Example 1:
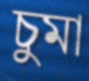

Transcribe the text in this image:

চুমা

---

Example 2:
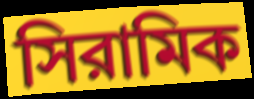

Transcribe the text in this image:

সিরামিক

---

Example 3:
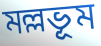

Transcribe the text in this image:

মল্লভূম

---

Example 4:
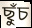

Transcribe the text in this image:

ছুঁচ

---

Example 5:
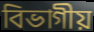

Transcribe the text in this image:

বিভাগীয়